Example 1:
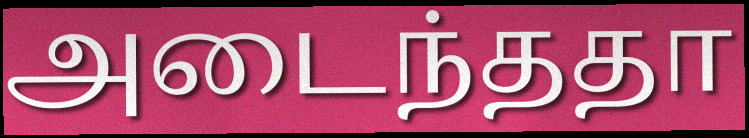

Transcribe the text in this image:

அடைந்ததா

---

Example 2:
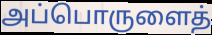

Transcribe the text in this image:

அப்பொருளைத்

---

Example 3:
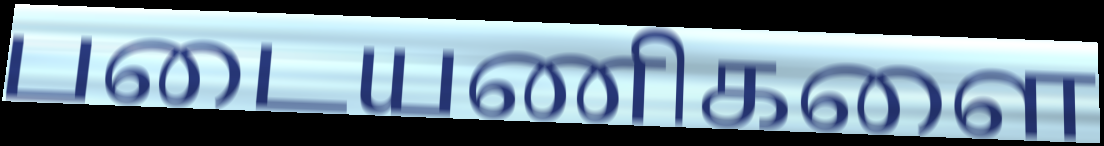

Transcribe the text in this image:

படையணிகளை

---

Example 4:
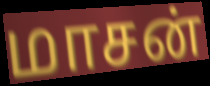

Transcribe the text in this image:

மாசன்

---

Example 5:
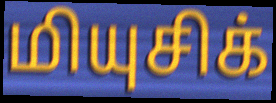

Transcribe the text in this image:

மியுசிக்